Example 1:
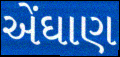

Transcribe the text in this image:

એંઘાણ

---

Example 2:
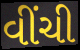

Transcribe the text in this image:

વીંચી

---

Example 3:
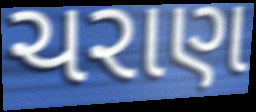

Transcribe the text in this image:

ચરાણ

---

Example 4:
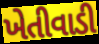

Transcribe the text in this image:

ખેતીવાડી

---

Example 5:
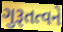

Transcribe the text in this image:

ગુરૂતત્વને